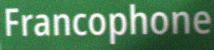
Francophone